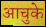
आचुके